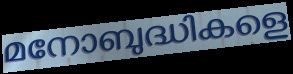
മനോബുദ്ധികളെ